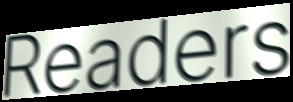
Readers